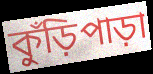
কুঁড়িপাড়া